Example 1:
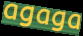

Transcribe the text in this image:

agaga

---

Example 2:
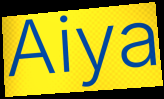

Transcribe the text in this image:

Aiya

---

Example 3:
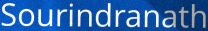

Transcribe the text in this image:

Sourindranath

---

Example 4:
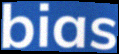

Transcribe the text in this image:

bias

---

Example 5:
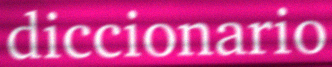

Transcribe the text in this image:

diccionario